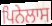
ਪਿਨੇਲਾਸ